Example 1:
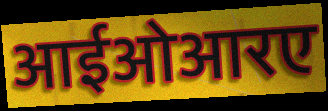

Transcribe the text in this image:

आईओआरए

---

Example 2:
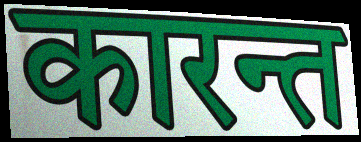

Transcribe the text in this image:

कारन्त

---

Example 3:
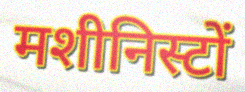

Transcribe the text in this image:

मशीनिस्टों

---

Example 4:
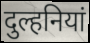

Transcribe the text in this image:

दुल्हनियां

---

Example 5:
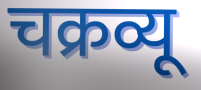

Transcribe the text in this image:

चक्रव्यू